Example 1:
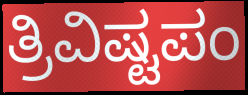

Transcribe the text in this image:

ತ್ರಿವಿಷ್ಟಪಂ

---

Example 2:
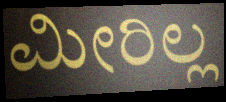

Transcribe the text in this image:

ಮೀರಿಲ್ಲ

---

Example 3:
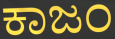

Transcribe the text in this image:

ಕಾಜಂ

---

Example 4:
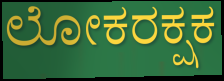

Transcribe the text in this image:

ಲೋಕರಕ್ಷಕ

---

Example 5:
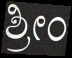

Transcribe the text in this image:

ಶ್ರೀಂ